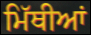
ਮਿੱਥੀਆਂ